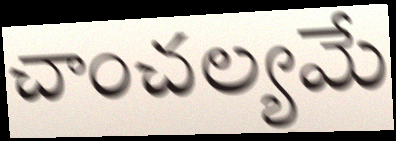
చాంచల్యమే